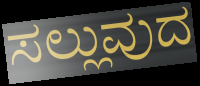
ಸಲ್ಲುವುದ